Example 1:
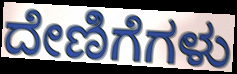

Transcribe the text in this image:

ದೇಣಿಗೆಗಳು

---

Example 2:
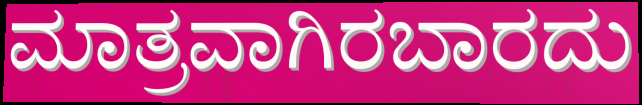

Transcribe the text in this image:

ಮಾತ್ರವಾಗಿರಬಾರದು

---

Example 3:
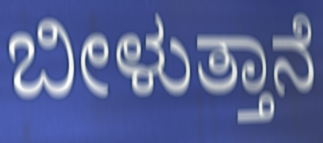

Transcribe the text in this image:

ಬೀಳುತ್ತಾನೆ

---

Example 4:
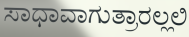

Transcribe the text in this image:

ಸಾಧಾವಾಗುತ್ರಾರಲ್ಲಲಿ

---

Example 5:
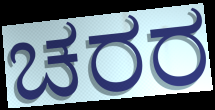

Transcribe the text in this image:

ಚರರ